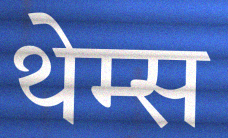
थेम्स